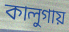
কালুগায়